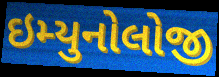
ઇમ્યુનોલોજી